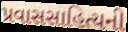
પ્રવાસસાહિત્યની